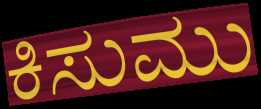
ಕಿಸುಮು